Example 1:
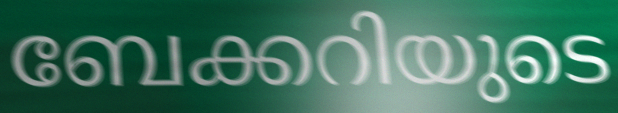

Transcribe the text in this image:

ബേക്കറിയുടെ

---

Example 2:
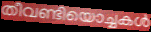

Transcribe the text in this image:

തീവണ്ടിയൊച്ചകൾ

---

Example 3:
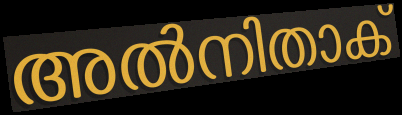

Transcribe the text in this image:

അൽനിതാക്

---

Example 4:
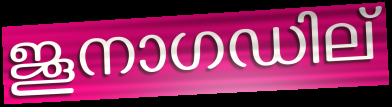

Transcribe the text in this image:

ജൂനാഗഡില്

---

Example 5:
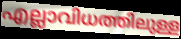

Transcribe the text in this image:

എല്ലാവിധത്തിലുള്ള